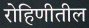
रोहिणीतील